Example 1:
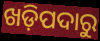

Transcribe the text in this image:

ଖଡ଼ିପଦାରୁ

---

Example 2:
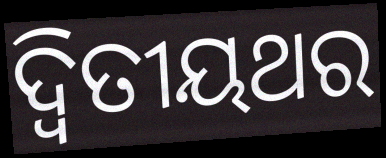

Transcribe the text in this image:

ଦ୍ବିତୀୟଥର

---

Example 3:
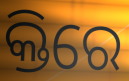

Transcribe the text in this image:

କ୍ତିରେ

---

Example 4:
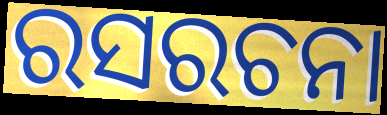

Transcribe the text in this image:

ରସରଚନା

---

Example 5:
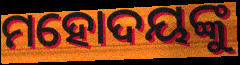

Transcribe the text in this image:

ମହୋଦୟଙ୍କୁ